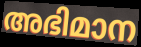
അഭിമാന